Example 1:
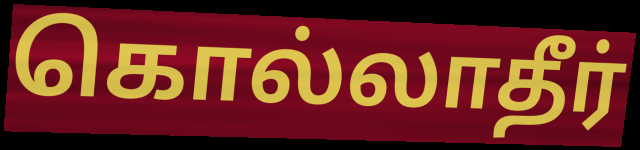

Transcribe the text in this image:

கொல்லாதீர்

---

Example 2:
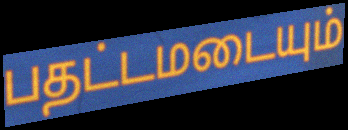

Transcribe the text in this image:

பதட்டமடையும்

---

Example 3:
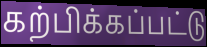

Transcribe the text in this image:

கற்பிக்கப்பட்டு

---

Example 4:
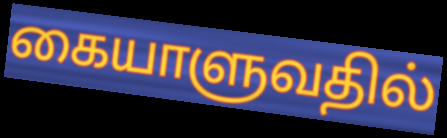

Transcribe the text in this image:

கையாளுவதில்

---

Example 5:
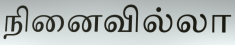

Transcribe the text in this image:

நினைவில்லா